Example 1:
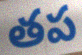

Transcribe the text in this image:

తప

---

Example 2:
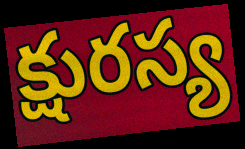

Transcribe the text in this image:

క్షురస్య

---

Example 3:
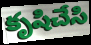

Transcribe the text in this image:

కృషిచేసి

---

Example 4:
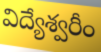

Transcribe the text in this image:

విద్యేశ్వరీం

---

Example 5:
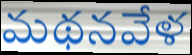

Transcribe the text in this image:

మథనవేళ